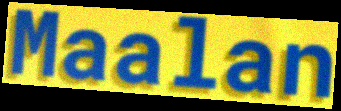
Maalan